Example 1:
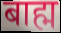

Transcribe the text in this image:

बाह्म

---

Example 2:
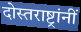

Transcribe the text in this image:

दोस्तराष्ट्रांनीं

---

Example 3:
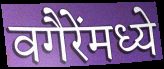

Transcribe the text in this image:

वगैरेंमध्ये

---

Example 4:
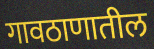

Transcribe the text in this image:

गावठाणातील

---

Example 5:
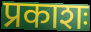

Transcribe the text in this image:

प्रकाशः